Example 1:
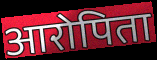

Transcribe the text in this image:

आरोपिता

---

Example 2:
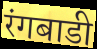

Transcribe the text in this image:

रंगबाडी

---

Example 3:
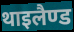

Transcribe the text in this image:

थाइलैण्ड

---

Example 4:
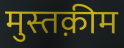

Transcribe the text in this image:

मुस्तक़ीम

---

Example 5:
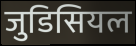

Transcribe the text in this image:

जुडिसियल